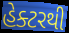
હેક્ટરથી